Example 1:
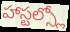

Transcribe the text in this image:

హాస్టల్స్లో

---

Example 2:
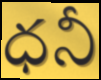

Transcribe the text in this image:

ధనీ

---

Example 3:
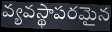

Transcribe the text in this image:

వ్యవస్థాపరమైన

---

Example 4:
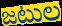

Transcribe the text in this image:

జటుల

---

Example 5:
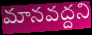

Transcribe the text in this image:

మానవద్దని